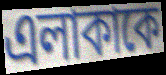
এলাকাকে